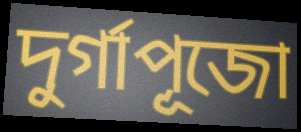
দুর্গাপূজো